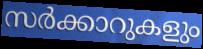
സർക്കാറുകളും